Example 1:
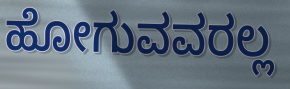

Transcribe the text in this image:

ಹೋಗುವವರಲ್ಲ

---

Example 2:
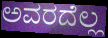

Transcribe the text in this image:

ಅವರದೆಲ್ಲ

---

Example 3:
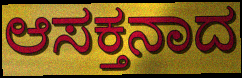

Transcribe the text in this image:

ಆಸಕ್ತನಾದ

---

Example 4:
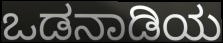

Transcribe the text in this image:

ಒಡನಾಡಿಯ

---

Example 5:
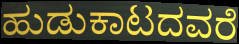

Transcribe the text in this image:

ಹುಡುಕಾಟದವರೆ